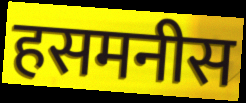
हसमनीस